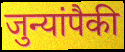
जुन्यांपैकी